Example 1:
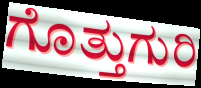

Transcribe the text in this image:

ಗೊತ್ತುಗುರಿ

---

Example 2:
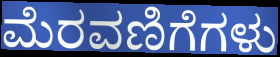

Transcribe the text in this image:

ಮೆರವಣಿಗೆಗಳು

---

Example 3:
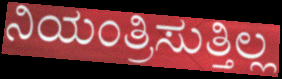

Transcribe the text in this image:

ನಿಯಂತ್ರಿಸುತ್ತಿಲ್ಲ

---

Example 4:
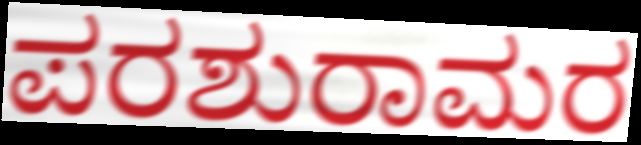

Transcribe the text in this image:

ಪರಶುರಾಮರ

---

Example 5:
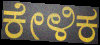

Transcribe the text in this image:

ಕೇಳಿಕ